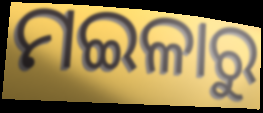
ମଇଳାରୁ